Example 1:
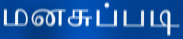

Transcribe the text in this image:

மனசுப்படி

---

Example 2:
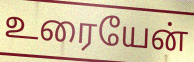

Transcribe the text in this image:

உரையேன்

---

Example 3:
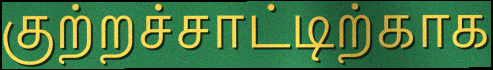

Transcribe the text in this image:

குற்றச்சாட்டிற்காக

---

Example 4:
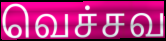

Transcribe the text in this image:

வெச்சவ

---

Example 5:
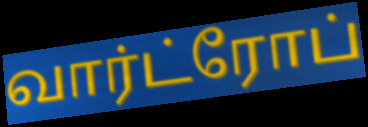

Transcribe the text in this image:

வார்ட்ரோப்